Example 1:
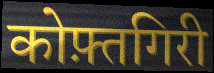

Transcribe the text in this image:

कोफ़्तगिरी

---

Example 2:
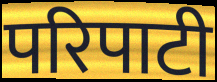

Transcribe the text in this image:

परिपाटी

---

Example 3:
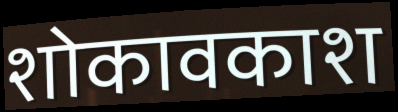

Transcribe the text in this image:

शोकावकाश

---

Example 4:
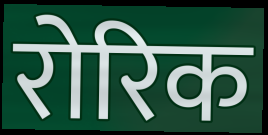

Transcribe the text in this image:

रोरिक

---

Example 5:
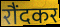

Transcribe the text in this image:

रौंदकर